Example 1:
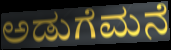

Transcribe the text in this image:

ಅಡುಗೆಮನೆ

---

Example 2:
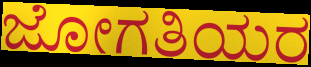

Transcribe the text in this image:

ಜೋಗತಿಯರ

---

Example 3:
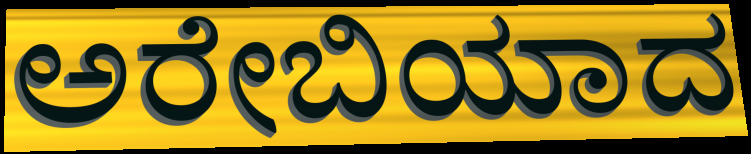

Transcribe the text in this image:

ಅರೇಬಿಯಾದ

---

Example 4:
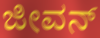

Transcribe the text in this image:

ಜೀವನ್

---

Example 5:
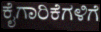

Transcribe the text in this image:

ಕೈಗಾರಿಕೆಗಳಿಗೆ